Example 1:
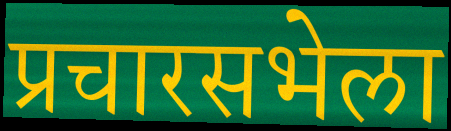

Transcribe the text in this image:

प्रचारसभेला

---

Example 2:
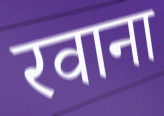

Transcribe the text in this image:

रवाना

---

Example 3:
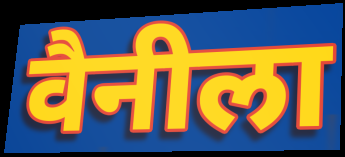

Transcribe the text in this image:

वैनीला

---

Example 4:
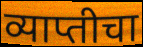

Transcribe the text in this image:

व्याप्तीचा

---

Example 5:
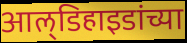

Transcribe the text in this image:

आल्डिहाइडांच्या